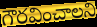
గౌరవించాలని